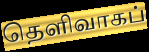
தெளிவாகப்